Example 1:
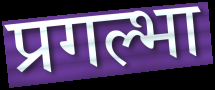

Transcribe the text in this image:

प्रगल्भा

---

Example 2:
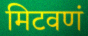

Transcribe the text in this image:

मिटवणं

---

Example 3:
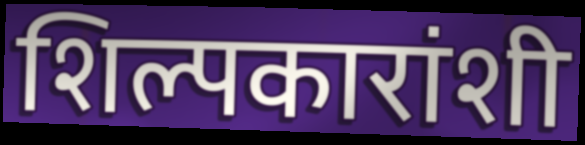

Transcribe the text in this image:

शिल्पकारांशी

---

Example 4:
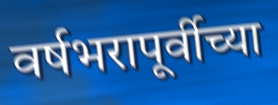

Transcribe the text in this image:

वर्षभरापूर्वीच्या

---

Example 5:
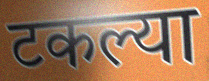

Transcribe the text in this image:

टकल्या